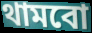
থামবো